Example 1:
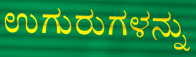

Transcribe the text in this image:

ಉಗುರುಗಳನ್ನು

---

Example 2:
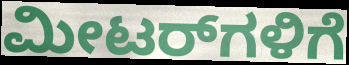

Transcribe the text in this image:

ಮೀಟರ್‌ಗಳಿಗೆ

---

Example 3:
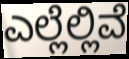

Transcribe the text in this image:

ಎಲ್ಲೆಲ್ಲಿವೆ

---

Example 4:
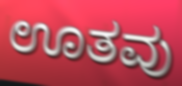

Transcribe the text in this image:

ಊತವು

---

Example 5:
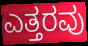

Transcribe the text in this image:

ಎತ್ತರವು